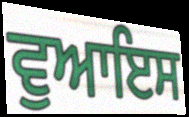
ਵੁਆਇਸ